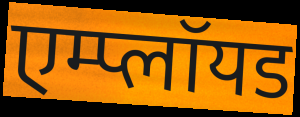
एम्प्लॉयड